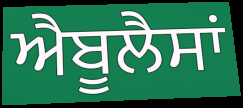
ਐਬੂਲੈਸਾਂ